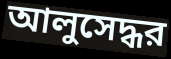
আলুসেদ্ধর